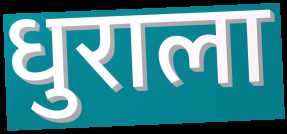
धुराला